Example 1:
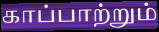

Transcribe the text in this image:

காப்பாற்றும்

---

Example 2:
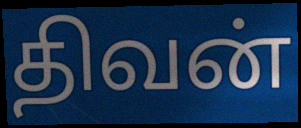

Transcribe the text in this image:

திவன்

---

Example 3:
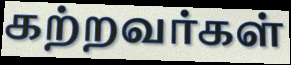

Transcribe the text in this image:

கற்றவர்கள்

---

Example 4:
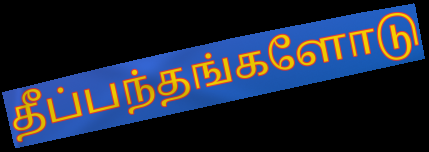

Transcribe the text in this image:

தீப்பந்தங்களோடு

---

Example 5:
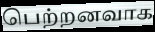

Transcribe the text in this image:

பெற்றனவாக